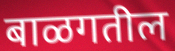
बाळगतील